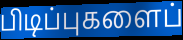
பிடிப்புகளைப்